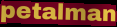
petalman